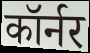
कॉर्नर